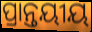
ପ୍ରାନ୍ତୟୀୟ